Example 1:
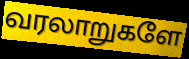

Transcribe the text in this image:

வரலாறுகளே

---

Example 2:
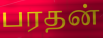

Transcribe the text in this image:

பரதன்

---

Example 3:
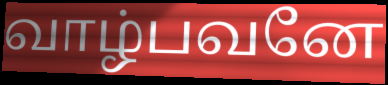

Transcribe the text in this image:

வாழ்பவனே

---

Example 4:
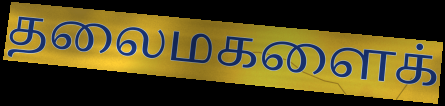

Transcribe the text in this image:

தலைமகளைக்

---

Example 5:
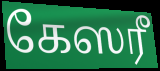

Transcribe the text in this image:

கேஸரீ